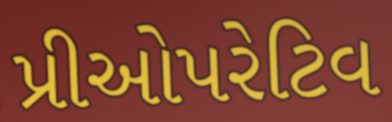
પ્રીઓપરેટિવ